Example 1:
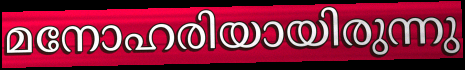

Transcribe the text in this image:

മനോഹരിയായിരുന്നു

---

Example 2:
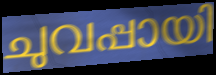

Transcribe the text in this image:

ചുവപ്പായി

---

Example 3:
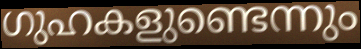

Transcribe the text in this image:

ഗുഹകളുണ്ടെന്നും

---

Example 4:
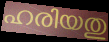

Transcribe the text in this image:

ഹരിയതു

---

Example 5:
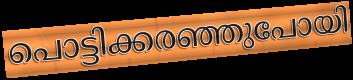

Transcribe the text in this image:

പൊട്ടിക്കരഞ്ഞുപോയി